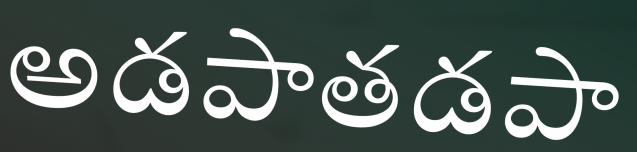
అడపాతడపా